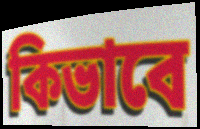
কিভাবে